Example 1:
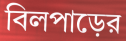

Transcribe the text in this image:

বিলপাড়ের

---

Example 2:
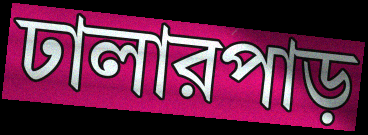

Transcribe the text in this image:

ঢালারপাড়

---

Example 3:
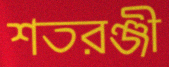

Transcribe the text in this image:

শতরঞ্জী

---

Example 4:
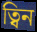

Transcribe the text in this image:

ত্বিন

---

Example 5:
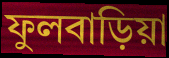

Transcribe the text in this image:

ফুলবাড়িয়া